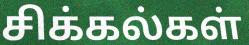
சிக்கல்கள்